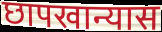
छापखान्यास